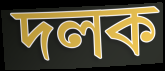
দলক